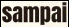
sampai